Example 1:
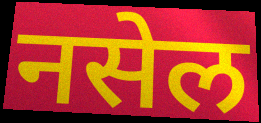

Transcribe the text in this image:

नसेल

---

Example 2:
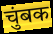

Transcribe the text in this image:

चुंबक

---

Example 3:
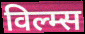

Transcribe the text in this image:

विल्म्स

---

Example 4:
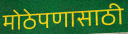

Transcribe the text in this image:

मोठेपणासाठी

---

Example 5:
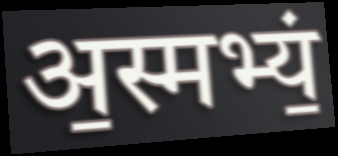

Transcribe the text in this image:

अ॒स्मभ्यं॒